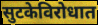
सुटकेविरोधात